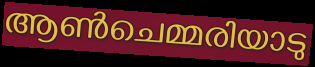
ആൺചെമ്മരിയാടു